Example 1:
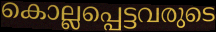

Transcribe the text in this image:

കൊല്ലപ്പെട്ടവരുടെ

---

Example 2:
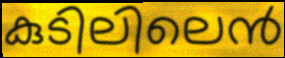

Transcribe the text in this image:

കുടിലിലെൻ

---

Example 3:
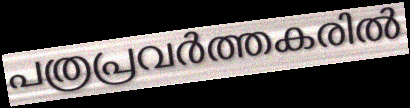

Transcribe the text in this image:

പത്രപ്രവർത്തകരിൽ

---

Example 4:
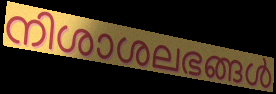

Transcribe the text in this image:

നിശാശലഭങ്ങൾ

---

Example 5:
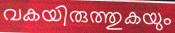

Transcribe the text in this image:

വകയിരുത്തുകയും